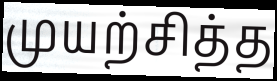
முயற்சித்த